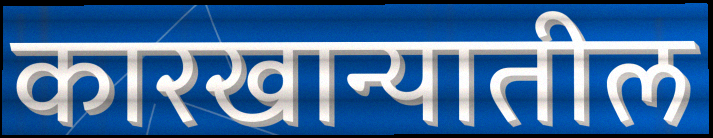
कारखान्यातील